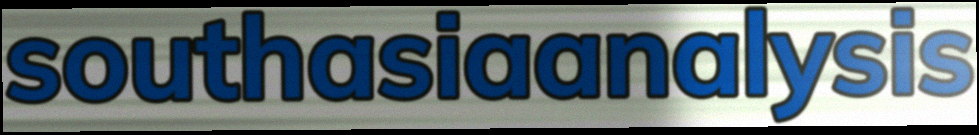
southasiaanalysis